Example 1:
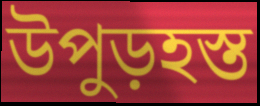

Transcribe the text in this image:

উপুড়হস্ত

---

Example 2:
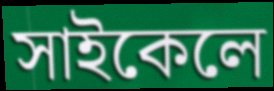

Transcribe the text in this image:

সাইকেলে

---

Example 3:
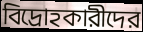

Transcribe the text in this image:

বিদ্রোহকারীদের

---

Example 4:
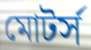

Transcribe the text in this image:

মোটর্স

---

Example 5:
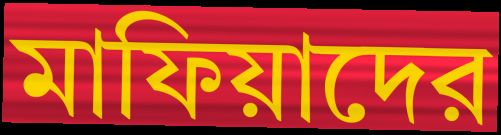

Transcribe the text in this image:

মাফিয়াদের